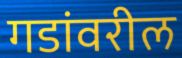
गडांवरील